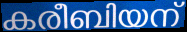
കരീബിയന്